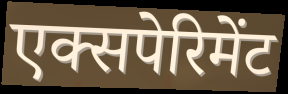
एक्सपेरिमेंट